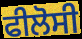
ਫੀਲੋਸੀ